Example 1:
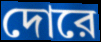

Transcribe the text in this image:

দোরে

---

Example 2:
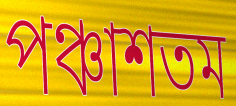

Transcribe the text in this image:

পঞ্চাশতম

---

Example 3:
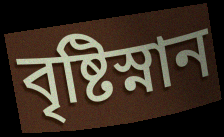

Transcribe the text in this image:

বৃষ্টিস্নান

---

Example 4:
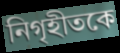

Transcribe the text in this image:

নিগৃহীতকে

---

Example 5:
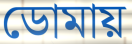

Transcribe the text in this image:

ডোমায়